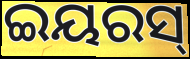
ଇୟରସ୍